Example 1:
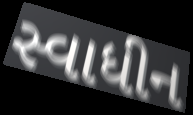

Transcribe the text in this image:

સ્વાધીન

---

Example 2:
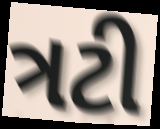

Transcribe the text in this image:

ત્રટી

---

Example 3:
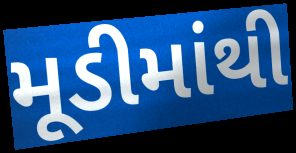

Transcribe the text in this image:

મૂડીમાંથી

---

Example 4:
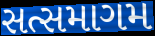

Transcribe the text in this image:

સત્સમાગમ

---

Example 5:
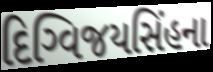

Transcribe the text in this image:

દિગ્વિજયસિંહના